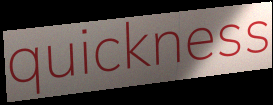
quickness